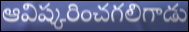
ఆవిష్కరించగలిగాడు